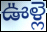
ఊళ్లె